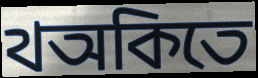
থঅকিতে